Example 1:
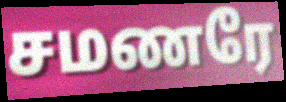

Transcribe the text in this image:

சமணரே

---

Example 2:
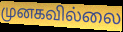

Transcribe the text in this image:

முனகவில்லை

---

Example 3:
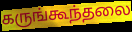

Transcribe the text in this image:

கருங்கூந்தலை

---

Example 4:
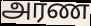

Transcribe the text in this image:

அரண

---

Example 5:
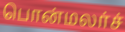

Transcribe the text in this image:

பொன்மலர்ச்